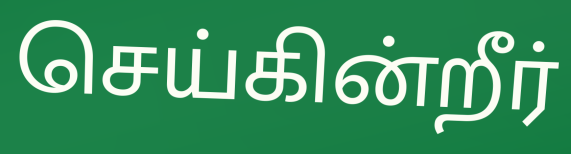
செய்கின்றீர்